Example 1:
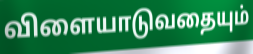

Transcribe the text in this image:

விளையாடுவதையும்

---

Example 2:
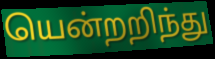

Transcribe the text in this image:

யென்றறிந்து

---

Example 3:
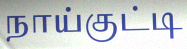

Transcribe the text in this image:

நாய்குட்டி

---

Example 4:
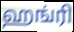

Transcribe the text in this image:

ஹங்ரி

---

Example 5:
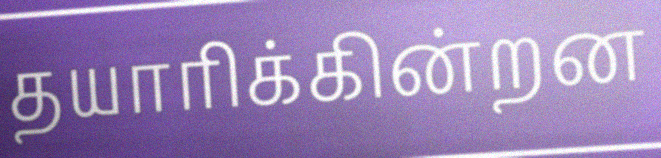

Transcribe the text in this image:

தயாரிக்கின்றன